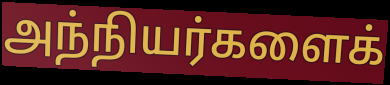
அந்நியர்களைக்